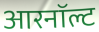
आरनॉल्ट